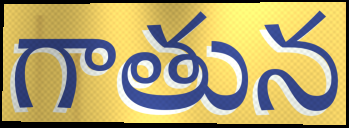
గాతున